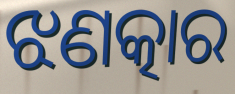
ଝଣତ୍କାର